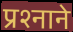
प्रश्नाने